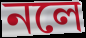
নলে